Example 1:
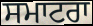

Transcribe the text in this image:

ਸਮਾਟਰਾ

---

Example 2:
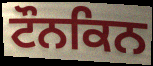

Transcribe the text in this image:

ਟੌਨਕਿਨ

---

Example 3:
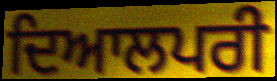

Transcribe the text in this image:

ਦਿਆਲਪਰੀ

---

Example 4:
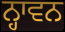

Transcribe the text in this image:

ਨ੍ਹਾਵਨ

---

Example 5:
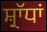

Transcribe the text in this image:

ਸ਼੍ਰਾੱਧਾਂ